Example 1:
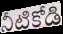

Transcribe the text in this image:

నీటికోడి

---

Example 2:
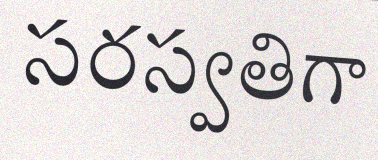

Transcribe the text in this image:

సరస్వతిగా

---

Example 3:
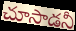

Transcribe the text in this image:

చూసాడనీ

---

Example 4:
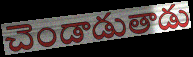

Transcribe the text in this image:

చెండాడుతాడు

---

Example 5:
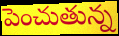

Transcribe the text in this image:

పెంచుతున్న